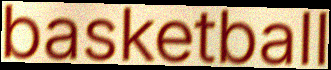
basketball